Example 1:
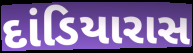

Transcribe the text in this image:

દાંડિયારાસ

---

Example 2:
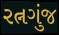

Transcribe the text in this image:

રત્નગુંજ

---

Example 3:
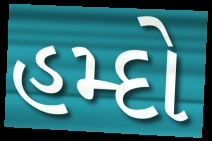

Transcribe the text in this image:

હમ્દો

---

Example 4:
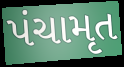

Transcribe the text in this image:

પંચામૃત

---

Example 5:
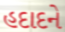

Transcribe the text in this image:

હદાદને